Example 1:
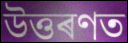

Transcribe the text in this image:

উত্তৰণত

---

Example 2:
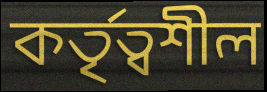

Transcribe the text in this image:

কৰ্তৃত্বশীল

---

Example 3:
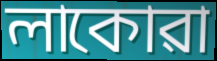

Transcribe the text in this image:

লাকোৱা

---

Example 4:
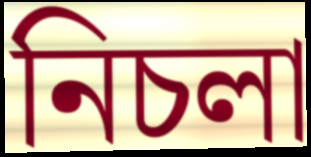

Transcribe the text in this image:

নিচলা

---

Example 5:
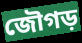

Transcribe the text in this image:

জৌগড়